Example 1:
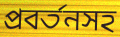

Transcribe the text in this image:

প্রবর্তনসহ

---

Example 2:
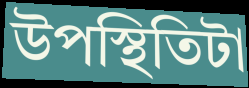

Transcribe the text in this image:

উপস্থিতিটা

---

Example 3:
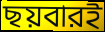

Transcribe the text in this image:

ছয়বারই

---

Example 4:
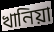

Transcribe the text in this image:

খানিয়া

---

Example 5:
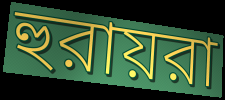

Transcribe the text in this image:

হুরায়রা